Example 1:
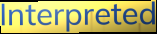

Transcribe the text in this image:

Interpreted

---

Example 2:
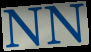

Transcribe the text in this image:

NN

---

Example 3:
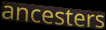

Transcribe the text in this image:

ancesters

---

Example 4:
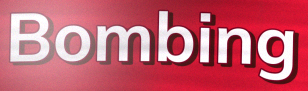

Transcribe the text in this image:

Bombing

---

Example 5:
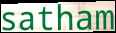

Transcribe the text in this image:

satham